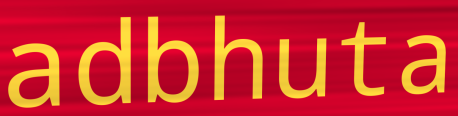
adbhuta